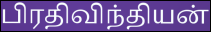
பிரதிவிந்தியன்